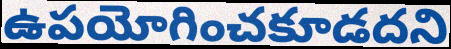
ఉపయోగించకూడదని